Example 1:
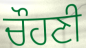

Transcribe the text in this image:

ਚੌਹਣੀ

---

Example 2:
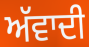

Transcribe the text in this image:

ਅੱਵਾਦੀ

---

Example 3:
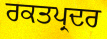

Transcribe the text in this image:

ਰਕਤਪ੍ਰਦਰ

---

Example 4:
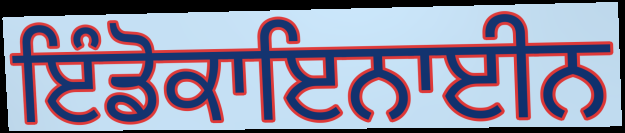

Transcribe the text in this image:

ਇੰਡੋਕਾਇਨਾਈਨ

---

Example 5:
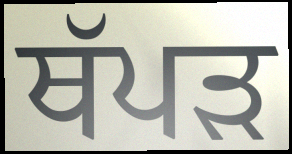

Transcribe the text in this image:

ਥੱਪੜ